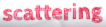
scattering